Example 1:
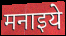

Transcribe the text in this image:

मनाइये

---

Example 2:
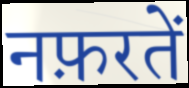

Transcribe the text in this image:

नफ़रतें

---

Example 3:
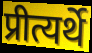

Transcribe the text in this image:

प्रीत्यर्थे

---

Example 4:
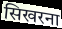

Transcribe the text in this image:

सिखरना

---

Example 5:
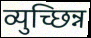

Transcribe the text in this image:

व्युच्छिन्न